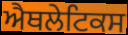
ਐਥਲੇਟਿਕਸ